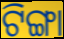
ଟିଙ୍ଗା